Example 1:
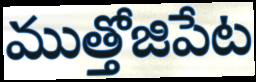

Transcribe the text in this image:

ముత్తోజిపేట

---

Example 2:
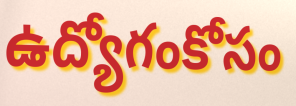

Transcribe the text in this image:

ఉద్యోగంకోసం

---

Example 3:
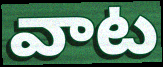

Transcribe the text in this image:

వాట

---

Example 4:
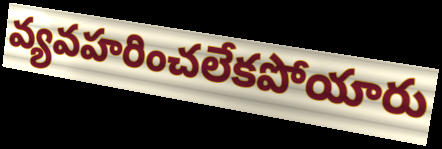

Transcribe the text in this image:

వ్యవహరించలేకపోయారు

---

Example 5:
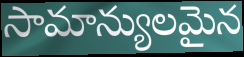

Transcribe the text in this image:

సామాన్యులమైన